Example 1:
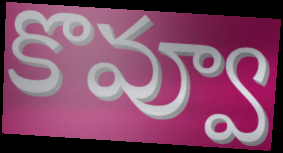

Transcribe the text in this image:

కొవ్వూ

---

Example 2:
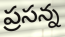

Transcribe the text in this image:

ప్రసన్న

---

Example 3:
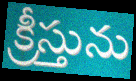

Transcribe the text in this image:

క్రీస్తును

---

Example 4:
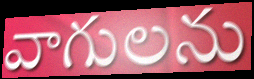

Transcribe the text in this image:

వాగులను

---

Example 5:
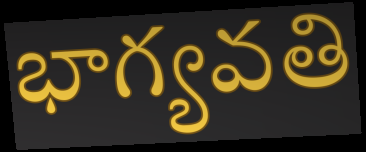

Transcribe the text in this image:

భాగ్యవతి